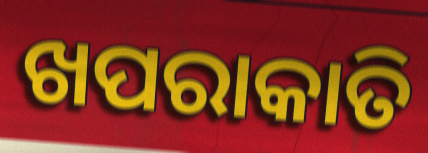
ଖପରାକାତି